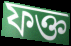
ফক্ত